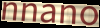
nnano